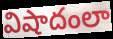
విషాదంలా